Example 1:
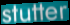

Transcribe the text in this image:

stutter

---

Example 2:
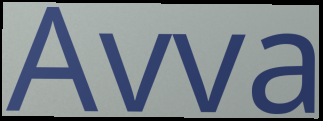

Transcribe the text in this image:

Avva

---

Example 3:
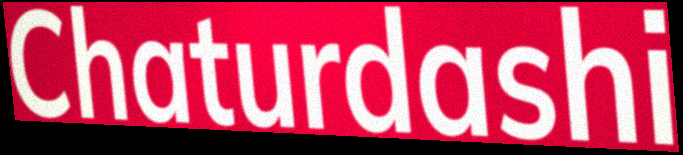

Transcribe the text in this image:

Chaturdashi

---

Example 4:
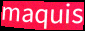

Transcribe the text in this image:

maquis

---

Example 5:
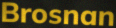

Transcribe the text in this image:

Brosnan